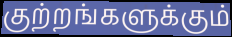
குற்றங்களுக்கும்